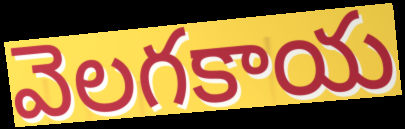
వెలగకాయ